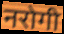
नरोगी